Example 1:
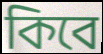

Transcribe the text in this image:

কিবে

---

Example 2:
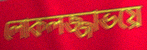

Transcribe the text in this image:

লোকলজ্জাভয়ে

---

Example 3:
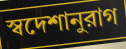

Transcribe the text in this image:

স্বদেশানুরাগ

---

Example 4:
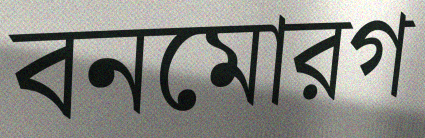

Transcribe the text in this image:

বনমোরগ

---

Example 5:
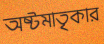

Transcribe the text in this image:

অষ্টমাতৃকার